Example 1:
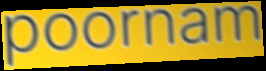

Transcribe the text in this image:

poornam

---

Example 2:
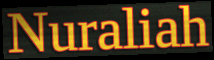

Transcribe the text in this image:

Nuraliah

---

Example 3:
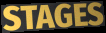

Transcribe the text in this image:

STAGES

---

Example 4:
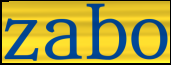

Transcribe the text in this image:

zabo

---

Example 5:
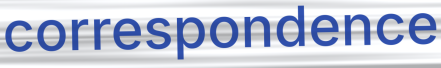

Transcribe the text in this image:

correspondence